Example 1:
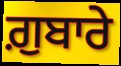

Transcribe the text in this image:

ਗ਼ੁਬਾਰੇ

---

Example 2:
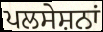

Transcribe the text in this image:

ਪਲਸੇਸ਼ਨਾਂ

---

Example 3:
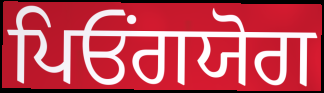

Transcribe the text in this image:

ਪਿਓਂਗਯੋਗ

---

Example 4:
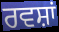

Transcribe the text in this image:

ਰਵਸ਼ਾਂ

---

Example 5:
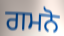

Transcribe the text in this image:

ਗਮਨੋ